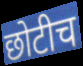
छोटीच